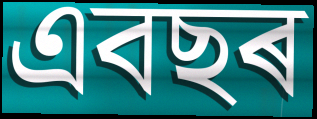
এবছৰ